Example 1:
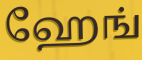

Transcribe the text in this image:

ஹேங்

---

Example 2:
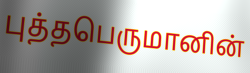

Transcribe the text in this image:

புத்தபெருமானின்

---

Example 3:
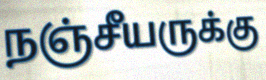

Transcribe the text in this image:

நஞ்சீயருக்கு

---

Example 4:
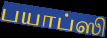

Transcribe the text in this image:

பயாப்ஸி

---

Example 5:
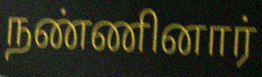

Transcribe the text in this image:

நண்ணினார்